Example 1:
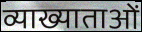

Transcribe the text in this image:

व्याख्याताओं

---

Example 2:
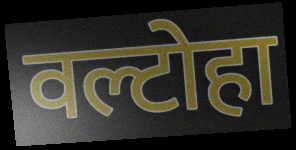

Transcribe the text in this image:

वल्टोहा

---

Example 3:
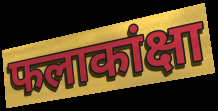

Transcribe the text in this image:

फलाकांक्षा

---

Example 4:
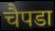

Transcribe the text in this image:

चैपडा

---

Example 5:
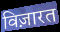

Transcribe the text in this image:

विज़ारत